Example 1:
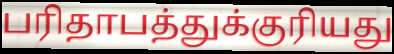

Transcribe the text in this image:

பரிதாபத்துக்குரியது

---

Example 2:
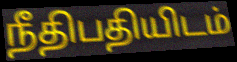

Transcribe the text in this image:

நீதிபதியிடம்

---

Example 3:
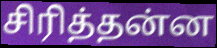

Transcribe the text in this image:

சிரித்தன்ன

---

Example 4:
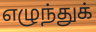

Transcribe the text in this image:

எழுந்துக்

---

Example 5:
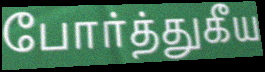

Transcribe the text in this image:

போர்த்துகீய